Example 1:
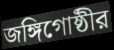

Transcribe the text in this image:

জঙ্গিগোষ্ঠীর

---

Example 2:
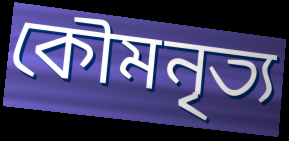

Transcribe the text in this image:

কৌমনৃত্য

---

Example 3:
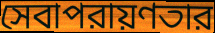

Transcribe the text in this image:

সেবাপরায়ণতার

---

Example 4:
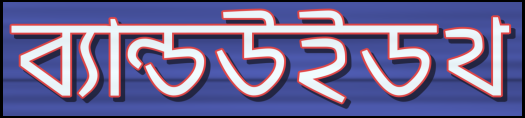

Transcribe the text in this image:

ব্যান্ডউইডথ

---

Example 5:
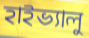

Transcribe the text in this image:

হাইভ্যালু